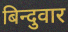
बिन्दुवार